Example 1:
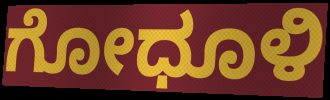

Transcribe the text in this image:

ಗೋಧೂಳಿ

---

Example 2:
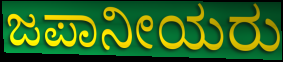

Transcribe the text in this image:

ಜಪಾನೀಯರು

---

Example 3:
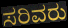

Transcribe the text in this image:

ಸರಿವರು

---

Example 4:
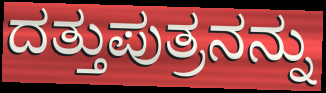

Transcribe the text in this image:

ದತ್ತುಪುತ್ರನನ್ನು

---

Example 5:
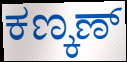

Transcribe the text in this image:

ಕಣ್ಕಣ್